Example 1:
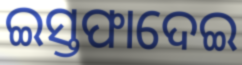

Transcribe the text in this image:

ଇସ୍ତଫାଦେଇ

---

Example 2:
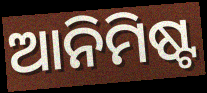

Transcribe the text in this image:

ଆନିମିଷ୍ଟ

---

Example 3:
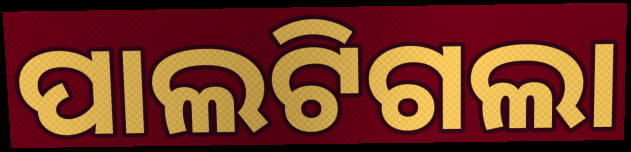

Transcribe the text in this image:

ପାଲଟିଗଲା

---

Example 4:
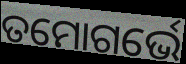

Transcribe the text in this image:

ତମୋଗର୍ଭେ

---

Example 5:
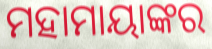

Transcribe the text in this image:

ମହାମାୟାଙ୍କର